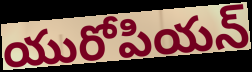
యురోపియన్